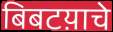
बिबटय़ाचे